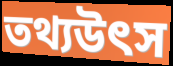
তথ্যউৎস